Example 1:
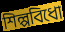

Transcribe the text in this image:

শিল্পবিধো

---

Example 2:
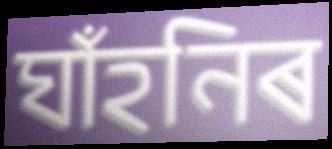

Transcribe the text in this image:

ঘাঁহনিৰ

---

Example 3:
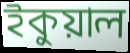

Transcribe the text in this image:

ইকুয়াল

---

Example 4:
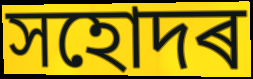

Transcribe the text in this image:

সহোদৰ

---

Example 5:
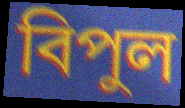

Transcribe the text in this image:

বিপুল